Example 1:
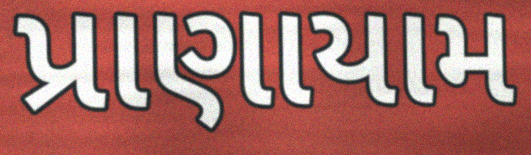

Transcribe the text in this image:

પ્રાણાયામ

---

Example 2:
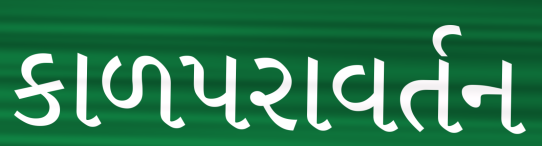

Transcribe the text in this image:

કાળપરાવર્તન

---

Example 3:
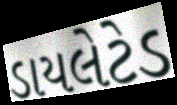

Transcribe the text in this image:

ડાયલેટેડ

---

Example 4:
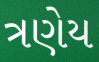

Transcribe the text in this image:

ત્રણેય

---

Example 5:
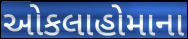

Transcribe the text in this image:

ઓકલાહોમાના